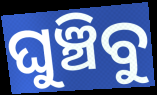
ଘୁଞ୍ଚିବୁ